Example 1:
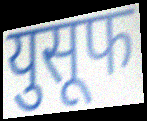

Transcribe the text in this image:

युसूफ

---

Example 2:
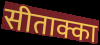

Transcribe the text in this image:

सीताक्का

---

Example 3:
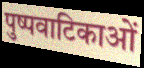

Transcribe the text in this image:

पुष्पवाटिकाओं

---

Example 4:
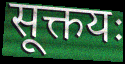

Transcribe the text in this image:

सूक्तयः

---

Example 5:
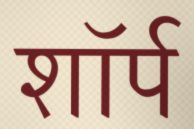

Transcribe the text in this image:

शॉर्प